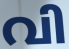
വി